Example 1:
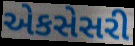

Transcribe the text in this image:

એકસેસરી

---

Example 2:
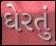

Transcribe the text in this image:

ઘેરતું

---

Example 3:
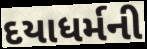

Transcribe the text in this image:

દયાધર્મની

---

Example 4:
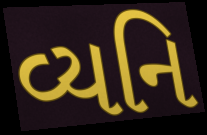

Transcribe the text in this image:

વ્યનિ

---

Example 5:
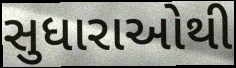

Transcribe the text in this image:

સુધારાઓથી